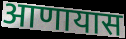
आणायास